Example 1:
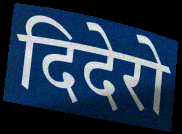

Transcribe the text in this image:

दिदेरो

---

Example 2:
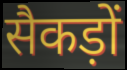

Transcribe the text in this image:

सैकड़ों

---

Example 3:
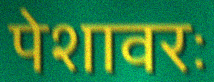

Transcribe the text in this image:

पेशावरः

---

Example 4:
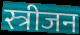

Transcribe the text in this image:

स्त्रीजन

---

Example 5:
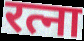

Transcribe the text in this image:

रत्ना